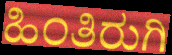
ಹಿಂತಿರುಗಿ